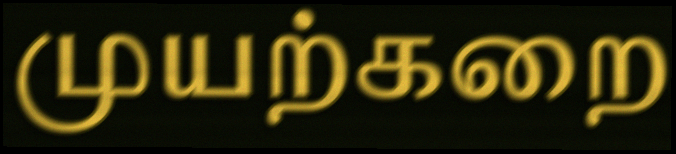
முயற்கறை